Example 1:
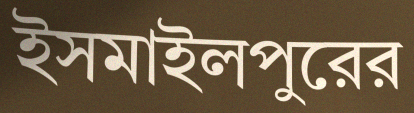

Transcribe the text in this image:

ইসমাইলপুরের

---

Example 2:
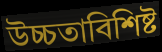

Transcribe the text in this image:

উচ্চতাবিশিষ্ট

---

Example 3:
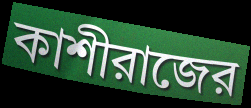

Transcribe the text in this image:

কাশীরাজের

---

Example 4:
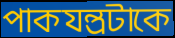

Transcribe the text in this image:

পাকযন্ত্রটাকে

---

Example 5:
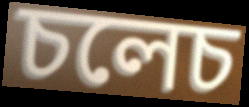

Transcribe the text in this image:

চলেচ